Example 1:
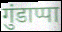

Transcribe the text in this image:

गुंडाप्पा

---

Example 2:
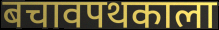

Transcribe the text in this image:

बचावपथकाला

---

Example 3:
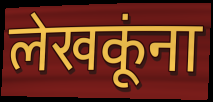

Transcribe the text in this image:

लेखकूंना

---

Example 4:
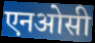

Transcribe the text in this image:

एनओसी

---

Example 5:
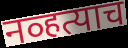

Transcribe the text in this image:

नव्हत्याच